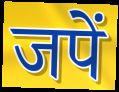
जपें